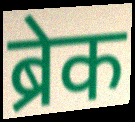
ब्रेक